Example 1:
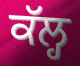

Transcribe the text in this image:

ਕੱਲ੍ਹ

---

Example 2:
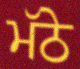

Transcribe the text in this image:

ਮੱਠੇ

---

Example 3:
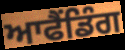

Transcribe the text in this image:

ਆਫੈਂਡਿੰਗ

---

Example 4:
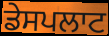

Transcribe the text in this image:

ਡੇਸਪਲਾਟ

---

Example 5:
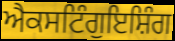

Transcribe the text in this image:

ਐਕਸਟਿੰਗੁਇਸ਼ਿੰਗ